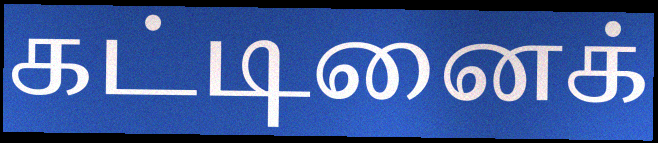
கட்டினைக்